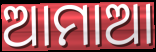
ଆମାଆ